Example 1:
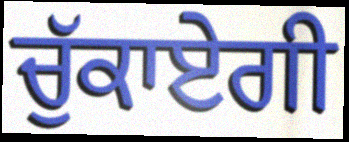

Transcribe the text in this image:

ਚੁੱਕਾਏਗੀ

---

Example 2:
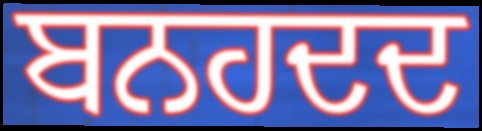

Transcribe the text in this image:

ਬਨਹਦਦ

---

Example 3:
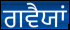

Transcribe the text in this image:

ਗਵੈਯਾਂ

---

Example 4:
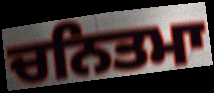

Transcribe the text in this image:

ਚਨਿਤਮਾ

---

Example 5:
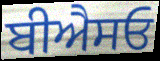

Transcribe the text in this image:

ਬੀਐਸਓ